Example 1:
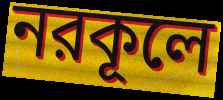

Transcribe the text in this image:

নরকূলে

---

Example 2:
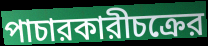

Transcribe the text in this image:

পাচারকারীচক্রের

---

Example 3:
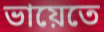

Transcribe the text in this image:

ভায়েতে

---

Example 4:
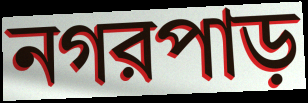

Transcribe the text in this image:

নগরপাড়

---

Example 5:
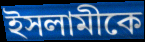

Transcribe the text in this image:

ইসলামীকে